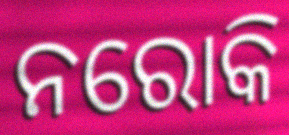
ନରୋକି